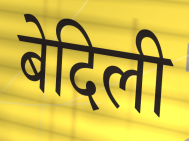
बेदिली